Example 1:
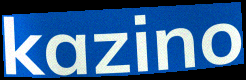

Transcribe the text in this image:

kazino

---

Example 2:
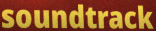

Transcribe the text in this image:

soundtrack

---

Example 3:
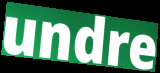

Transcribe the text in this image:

undre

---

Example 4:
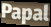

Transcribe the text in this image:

Papal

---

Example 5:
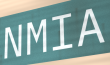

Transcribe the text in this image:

NMIA